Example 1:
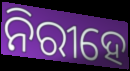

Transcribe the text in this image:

ନିରୀହେ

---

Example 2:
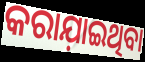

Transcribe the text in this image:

କରାଯ଼ାଇଥିବା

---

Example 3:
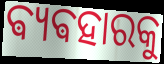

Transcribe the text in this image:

ଵ୍ୟଵହାରକୁ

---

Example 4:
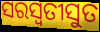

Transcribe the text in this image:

ସରସ୍ୱତୀସୁତ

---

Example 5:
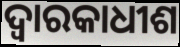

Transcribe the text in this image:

ଦ୍ୱାରକାଧୀଶ